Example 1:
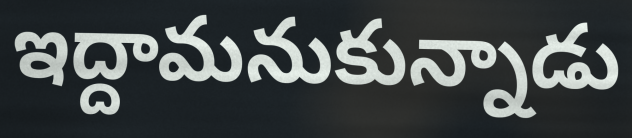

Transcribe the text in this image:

ఇద్దామనుకున్నాడు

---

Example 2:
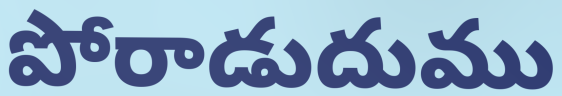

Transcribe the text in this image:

పోరాడుదుము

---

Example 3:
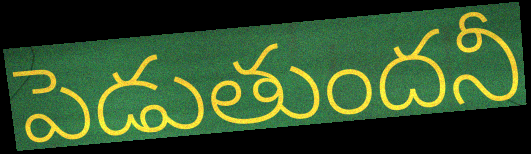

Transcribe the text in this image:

పెడుతుందనీ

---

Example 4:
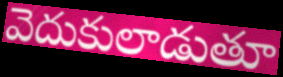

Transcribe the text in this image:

వెదుకులాడుతూ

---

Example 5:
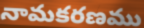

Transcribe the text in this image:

నామకరణము